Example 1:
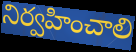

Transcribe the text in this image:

నిర్వహించాలి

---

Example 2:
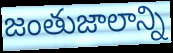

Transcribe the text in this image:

జంతుజాలాన్ని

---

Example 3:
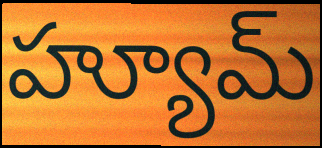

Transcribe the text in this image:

హ్యూమ్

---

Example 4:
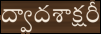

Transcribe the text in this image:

ద్వాదశాక్షరీ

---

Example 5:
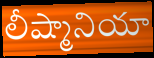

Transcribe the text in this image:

లీష్మానియా